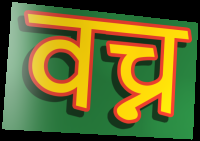
वच्न